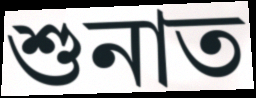
শুনাত